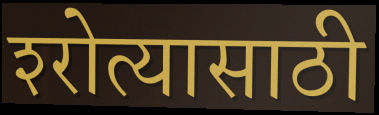
श्रोत्यासाठी